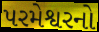
પરમેશ્વરનો